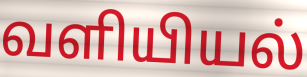
வளியியல்